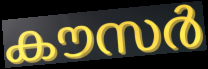
കൗസർ